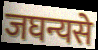
जघन्यसे